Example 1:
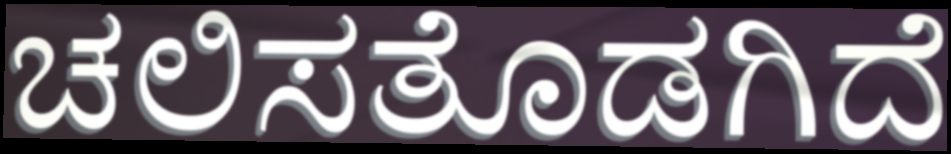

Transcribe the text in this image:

ಚಲಿಸತೊಡಗಿದೆ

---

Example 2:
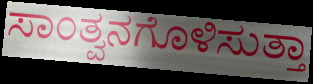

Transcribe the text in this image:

ಸಾಂತ್ವನಗೊಳಿಸುತ್ತಾ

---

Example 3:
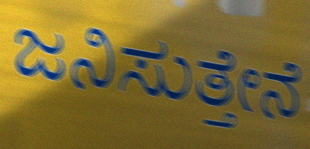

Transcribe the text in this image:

ಜನಿಸುತ್ತೇನೆ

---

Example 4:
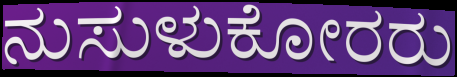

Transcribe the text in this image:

ನುಸುಳುಕೋರರು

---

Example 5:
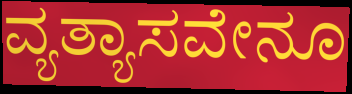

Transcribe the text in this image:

ವ್ಯತ್ಯಾಸವೇನೂ